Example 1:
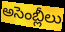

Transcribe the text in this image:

అసెంబ్లీలు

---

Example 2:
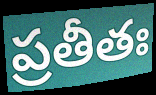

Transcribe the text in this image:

ప్రతీతః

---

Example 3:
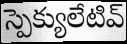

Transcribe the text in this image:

స్పెక్యులేటివ్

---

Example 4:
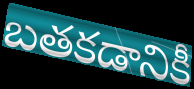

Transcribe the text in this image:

బతకడానికీ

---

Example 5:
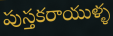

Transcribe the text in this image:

పుస్తకరాయుళ్ళ